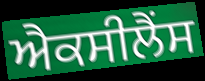
ਐਕਸੀਲੈਂਸ